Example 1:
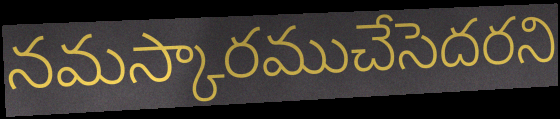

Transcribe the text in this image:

నమస్కారముచేసెదరని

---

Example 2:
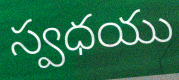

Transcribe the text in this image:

స్వధయు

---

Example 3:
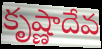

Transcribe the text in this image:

కృష్ణాదేవ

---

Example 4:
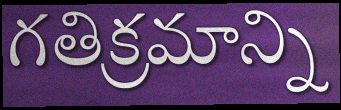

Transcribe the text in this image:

గతిక్రమాన్ని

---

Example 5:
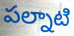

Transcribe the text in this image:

పల్నాటి